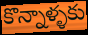
కొన్నాళ్ళకు